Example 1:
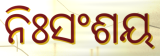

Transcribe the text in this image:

ନିଃସଂଶୟ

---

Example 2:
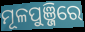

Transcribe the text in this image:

ମୂଳପୁଞ୍ଜିରେ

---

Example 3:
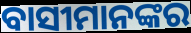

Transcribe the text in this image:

ବାସୀମାନଙ୍କର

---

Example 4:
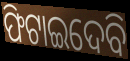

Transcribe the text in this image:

ଫିଟାଇଦେବି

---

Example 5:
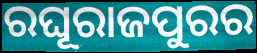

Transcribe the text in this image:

ରଘୂରାଜପୁରର